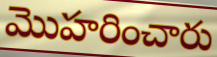
మొహరించారు